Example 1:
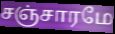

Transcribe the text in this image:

சஞ்சாரமே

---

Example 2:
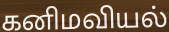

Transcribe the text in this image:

கனிமவியல்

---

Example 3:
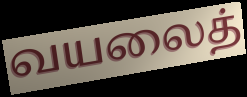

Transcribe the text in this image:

வயலைத்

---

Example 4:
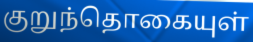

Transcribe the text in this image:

குறுந்தொகையுள்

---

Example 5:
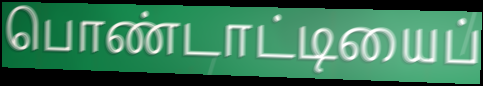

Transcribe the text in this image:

பொண்டாட்டியைப்